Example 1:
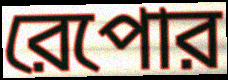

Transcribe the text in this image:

রেপোর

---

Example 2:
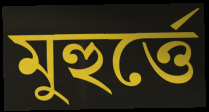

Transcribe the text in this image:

মুহুর্ত্তে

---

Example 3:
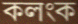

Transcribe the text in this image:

কলংক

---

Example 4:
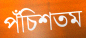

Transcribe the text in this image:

পঁচিশতম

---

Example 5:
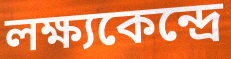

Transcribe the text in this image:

লক্ষ্যকেন্দ্রে